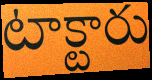
టాక్టారు